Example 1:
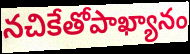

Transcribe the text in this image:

నచికేతోపాఖ్యానం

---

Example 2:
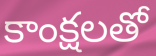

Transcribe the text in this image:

కాంక్షలతో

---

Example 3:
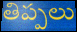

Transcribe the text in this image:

తిప్పలు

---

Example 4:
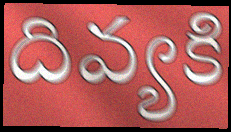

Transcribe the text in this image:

దివ్యకి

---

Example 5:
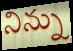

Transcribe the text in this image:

నిన్ను